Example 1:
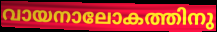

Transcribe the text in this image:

വായനാലോകത്തിനു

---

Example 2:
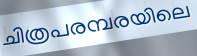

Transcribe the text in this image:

ചിത്രപരമ്പരയിലെ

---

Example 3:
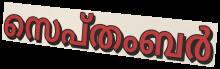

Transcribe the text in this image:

സെപ്തംബർ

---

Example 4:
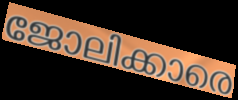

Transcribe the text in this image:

ജോലിക്കാരെ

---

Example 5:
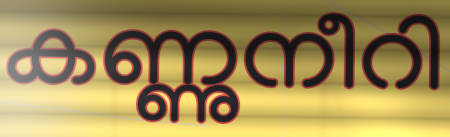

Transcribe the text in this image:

കണ്ണുനീറി